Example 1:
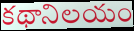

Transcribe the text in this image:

కథానిలయం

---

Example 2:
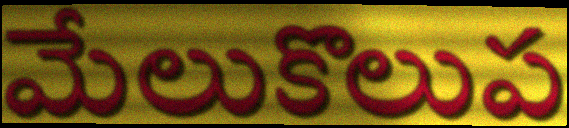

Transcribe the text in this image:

మేలుకొలుప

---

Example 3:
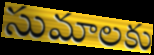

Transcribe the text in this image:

సుమాలకు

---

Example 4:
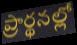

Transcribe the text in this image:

ప్రార్థనల్లో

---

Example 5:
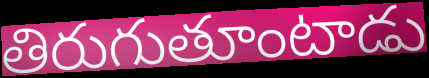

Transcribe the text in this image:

తిరుగుతూంటాడు